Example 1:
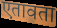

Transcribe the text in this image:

एतावता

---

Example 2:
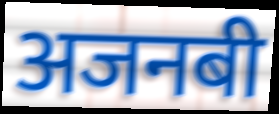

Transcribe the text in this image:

अजनबी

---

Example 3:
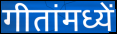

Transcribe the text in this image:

गीतांमध्यें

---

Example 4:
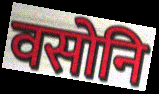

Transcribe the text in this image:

वसोनि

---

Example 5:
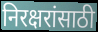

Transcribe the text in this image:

निरक्षरांसाठी